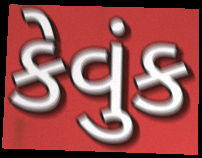
કેવુંક